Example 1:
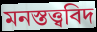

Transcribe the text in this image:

মনস্তত্ত্ববিদ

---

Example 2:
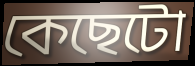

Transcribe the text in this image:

কেছেটো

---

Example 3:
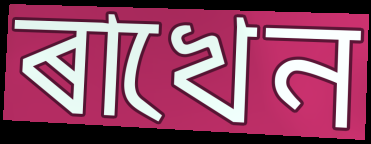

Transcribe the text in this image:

ৰাখেন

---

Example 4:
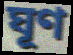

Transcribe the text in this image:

ঘূণ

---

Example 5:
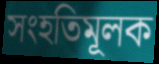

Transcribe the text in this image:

সংহতিমূলক